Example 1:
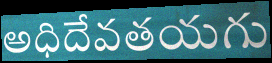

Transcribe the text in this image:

అధిదేవతయగు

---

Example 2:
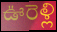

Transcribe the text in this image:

ఊరెళ్లి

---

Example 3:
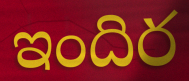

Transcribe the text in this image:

ఇందిర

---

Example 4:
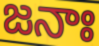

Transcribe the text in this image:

జనాః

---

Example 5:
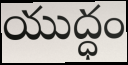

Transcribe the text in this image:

యుద్ధం